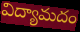
విద్యామదం